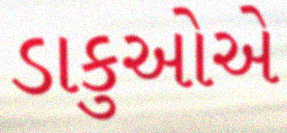
ડાકુઓએ